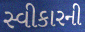
સ્વીકારની